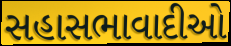
સહાસભાવાદીઓ